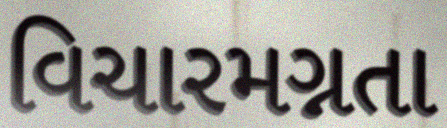
વિચારમગ્નતા